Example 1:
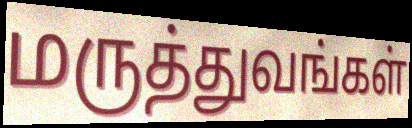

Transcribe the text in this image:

மருத்துவங்கள்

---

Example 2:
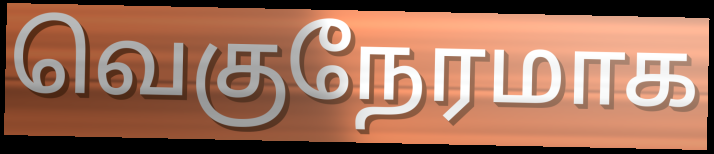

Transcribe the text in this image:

வெகுநேரமாக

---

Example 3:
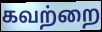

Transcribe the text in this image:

கவற்றை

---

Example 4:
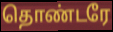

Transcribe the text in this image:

தொண்டரே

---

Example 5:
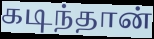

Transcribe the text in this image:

கடிந்தான்